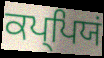
ਕਪ੍ਪਿਯਂ